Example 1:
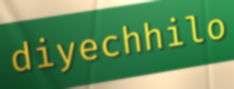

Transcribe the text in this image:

diyechhilo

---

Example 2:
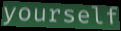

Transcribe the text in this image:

yourself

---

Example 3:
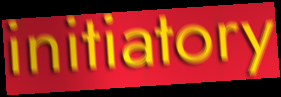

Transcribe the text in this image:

initiatory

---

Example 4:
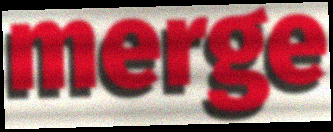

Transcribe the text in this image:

merge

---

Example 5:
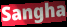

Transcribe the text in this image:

Sangha